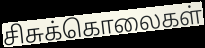
சிசுக்கொலைகள்